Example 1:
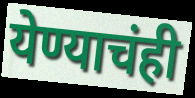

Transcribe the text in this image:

येण्याचंही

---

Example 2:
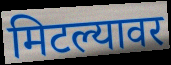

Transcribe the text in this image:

मिटल्यावर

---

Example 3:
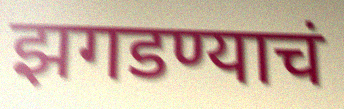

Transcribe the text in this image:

झगडण्याचं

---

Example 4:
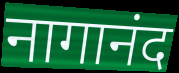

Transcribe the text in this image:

नागानंद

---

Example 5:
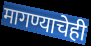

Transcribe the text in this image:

मागण्याचेही